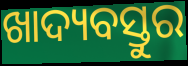
ଖାଦ୍ୟବସ୍ତୁର